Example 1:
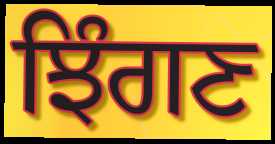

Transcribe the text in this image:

ਝਿੰਗਣ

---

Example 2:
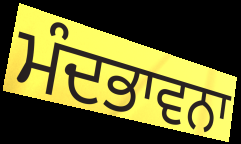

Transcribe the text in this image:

ਮੰਦਭਾਵਨਾ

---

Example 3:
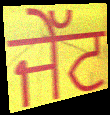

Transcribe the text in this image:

ਜੇੱਟ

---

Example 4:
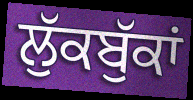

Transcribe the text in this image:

ਲੁੱਕਬੁੱਕਾਂ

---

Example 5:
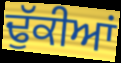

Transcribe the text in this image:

ਢੁੱਕੀਆਂ